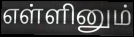
எள்ளினும்